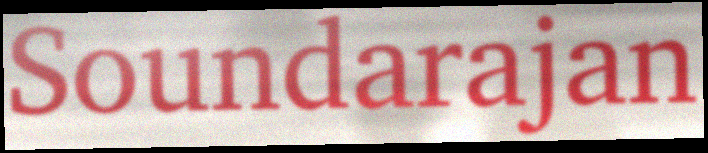
Soundarajan